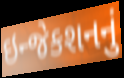
ઇન્જેકશનનું